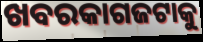
ଖବରକାଗଜଟାକୁ